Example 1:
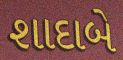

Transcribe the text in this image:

શાદાબે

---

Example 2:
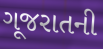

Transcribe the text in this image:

ગૂજરાતની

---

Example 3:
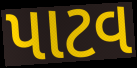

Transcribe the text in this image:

પાટવ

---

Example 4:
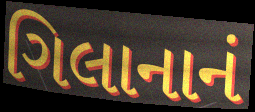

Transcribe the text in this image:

ગિલાનાનં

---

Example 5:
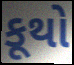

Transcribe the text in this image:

કૂથો